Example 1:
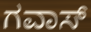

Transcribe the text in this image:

ಗವಾಸ್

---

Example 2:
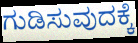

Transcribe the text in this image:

ಗುಡಿಸುವುದಕ್ಕೆ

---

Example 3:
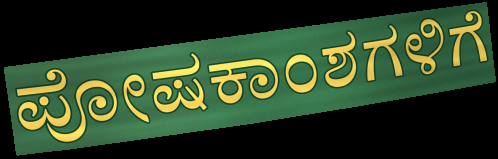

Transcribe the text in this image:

ಪೋಷಕಾಂಶಗಳಿಗೆ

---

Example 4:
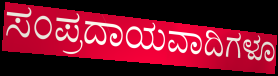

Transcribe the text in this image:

ಸಂಪ್ರದಾಯವಾದಿಗಳೂ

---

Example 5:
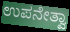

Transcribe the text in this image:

ಉಪನೇತ್ವಾ